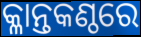
କ୍ଳାନ୍ତକଣ୍ଠରେ